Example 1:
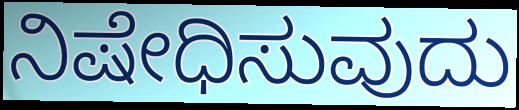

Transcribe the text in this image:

ನಿಷೇಧಿಸುವುದು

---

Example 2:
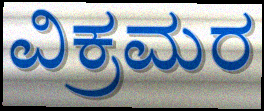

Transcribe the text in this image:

ವಿಕ್ರಮರ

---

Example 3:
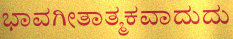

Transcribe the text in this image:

ಭಾವಗೀತಾತ್ಮಕವಾದುದು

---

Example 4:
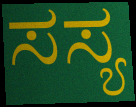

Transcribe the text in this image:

ಸಸ್ಯ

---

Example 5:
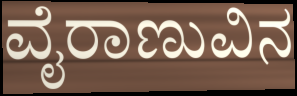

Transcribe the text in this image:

ವೈರಾಣುವಿನ